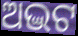
ଅଦ୍ଭଟ